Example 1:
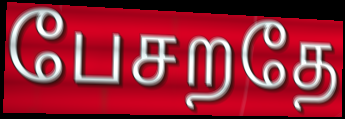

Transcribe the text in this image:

பேசறதே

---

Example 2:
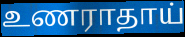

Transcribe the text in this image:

உணராதாய்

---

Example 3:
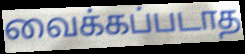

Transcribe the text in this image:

வைக்கப்படாத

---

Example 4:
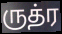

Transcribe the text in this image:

ருத்ர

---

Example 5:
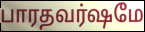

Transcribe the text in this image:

பாரதவர்ஷமே